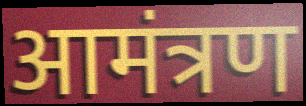
आमंत्रण